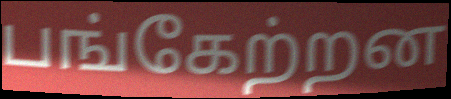
பங்கேற்றன